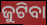
ଜୁଟିବା